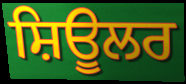
ਸ਼ਿਊਲਰ